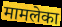
मामलेका